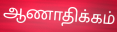
ஆணாதிக்கம்